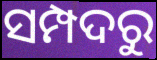
ସମ୍ପଦରୁ